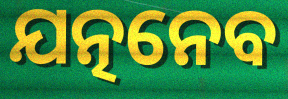
ଯତ୍ନନେବ